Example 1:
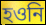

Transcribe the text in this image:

হওনি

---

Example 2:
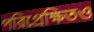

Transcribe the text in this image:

পরিপ্রেক্ষিতও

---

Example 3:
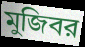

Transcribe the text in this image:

মুজিবর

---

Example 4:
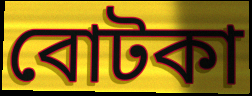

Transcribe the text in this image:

বোটকা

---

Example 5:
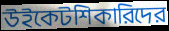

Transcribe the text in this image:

উইকেটশিকারিদের